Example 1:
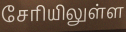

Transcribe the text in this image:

சேரியிலுள்ள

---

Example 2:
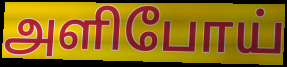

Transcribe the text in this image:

அளிபோய்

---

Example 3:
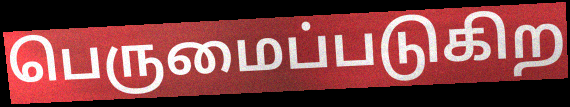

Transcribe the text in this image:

பெருமைப்படுகிற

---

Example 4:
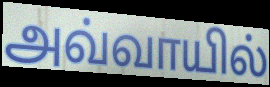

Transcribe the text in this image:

அவ்வாயில்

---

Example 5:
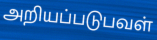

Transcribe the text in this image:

அறியப்படுபவள்